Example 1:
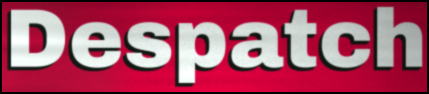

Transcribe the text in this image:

Despatch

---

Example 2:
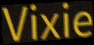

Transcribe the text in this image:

Vixie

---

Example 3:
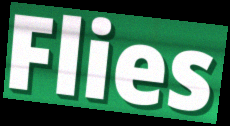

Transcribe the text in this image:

Flies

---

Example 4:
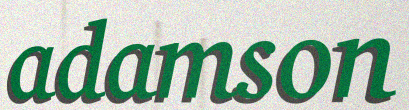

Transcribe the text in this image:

adamson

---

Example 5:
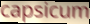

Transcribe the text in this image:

capsicum